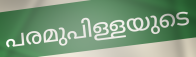
പരമുപിള്ളയുടെ